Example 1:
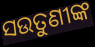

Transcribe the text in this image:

ସଉତୁଣୀଙ୍କ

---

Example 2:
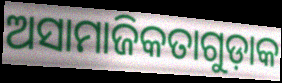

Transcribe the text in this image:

ଅସାମାଜିକତାଗୁଡ଼ାକ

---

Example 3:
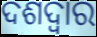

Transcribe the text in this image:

ଦଶଦ୍ୱାର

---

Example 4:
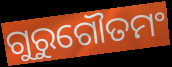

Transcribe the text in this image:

ଗୁରୁଗୌତମଂ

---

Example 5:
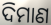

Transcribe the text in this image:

ଦିମାଣ